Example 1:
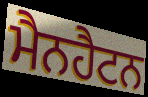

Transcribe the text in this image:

ਮੈਨਹੈਟਨ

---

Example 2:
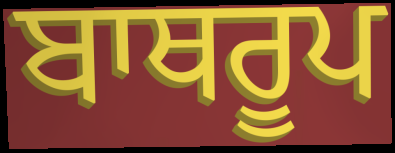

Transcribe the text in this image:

ਬਾਥਰੂਪ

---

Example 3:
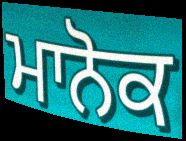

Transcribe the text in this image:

ਮਾਨੋਕ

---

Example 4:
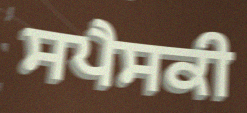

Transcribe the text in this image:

ਸਪੈਸਕੀ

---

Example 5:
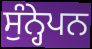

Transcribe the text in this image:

ਸੁੰਨ੍ਹੇਪਨ